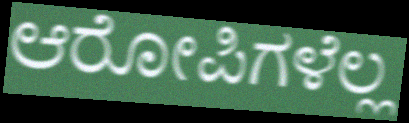
ಆರೋಪಿಗಳೆಲ್ಲ